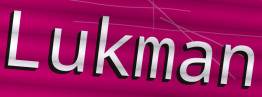
Lukman